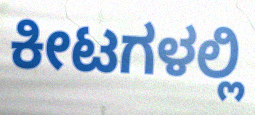
ಕೀಟಗಳಲ್ಲಿ